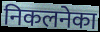
निकलनेका